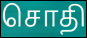
சொதி